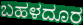
ಬಹಳದೂರ